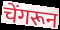
चेंगरून